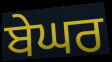
ਬੇਘਰ